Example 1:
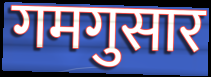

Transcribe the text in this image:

गमगुसार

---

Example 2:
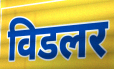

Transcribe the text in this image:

विडलर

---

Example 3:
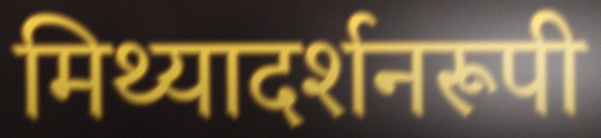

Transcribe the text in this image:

मिथ्यादर्शनरूपी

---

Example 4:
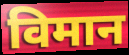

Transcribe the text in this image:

विमान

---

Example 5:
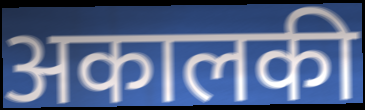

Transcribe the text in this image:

अकालकी